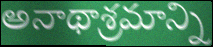
అనాథాశ్రమాన్ని